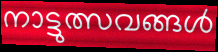
നാട്ടുത്സവങ്ങൾ